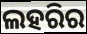
ଲହରିର